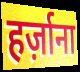
हर्ज़ाना